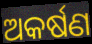
ଅକର୍ଷଣ